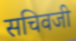
सचिवजी